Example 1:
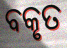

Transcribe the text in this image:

ବକୃତ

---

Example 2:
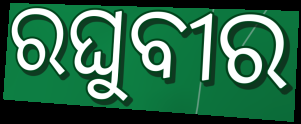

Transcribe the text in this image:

ରଘୁବୀର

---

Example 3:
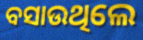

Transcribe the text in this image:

ବସାଉଥିଲେ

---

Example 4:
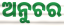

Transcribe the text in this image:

ଅନୁଚର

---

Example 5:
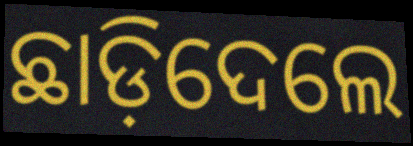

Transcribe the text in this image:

ଛାଡ଼ିଦେଲେ